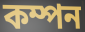
কম্পন